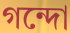
গন্দো